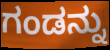
ಗಂಡನ್ನು